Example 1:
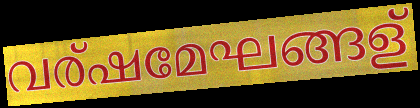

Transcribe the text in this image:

വര്ഷമേഘങ്ങള്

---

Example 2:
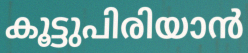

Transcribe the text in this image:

കൂട്ടുപിരിയാൻ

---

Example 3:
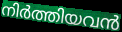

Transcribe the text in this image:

നിർത്തിയവൻ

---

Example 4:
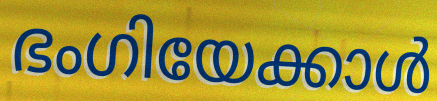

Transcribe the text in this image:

ഭംഗിയേക്കാൾ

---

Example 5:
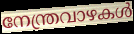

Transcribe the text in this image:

നേന്ത്രവാഴകൾ